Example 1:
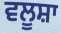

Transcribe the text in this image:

ਵਲੂਸ਼ਾ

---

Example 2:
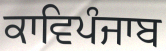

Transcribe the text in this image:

ਕਾਵਿਪੰਜਾਬ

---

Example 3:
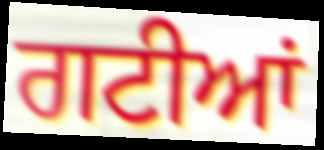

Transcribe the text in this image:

ਗਟੀਆਂ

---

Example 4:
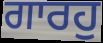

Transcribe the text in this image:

ਗਾਰਹੁ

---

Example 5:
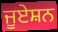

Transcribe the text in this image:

ਜੂਏਸ਼ਨ